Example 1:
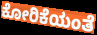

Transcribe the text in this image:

ಕೋರಿಕೆಯಂತೆ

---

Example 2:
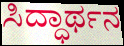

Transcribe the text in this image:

ಸಿದ್ಧಾರ್ಥನ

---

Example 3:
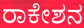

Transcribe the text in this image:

ರಾಕೇಶನ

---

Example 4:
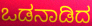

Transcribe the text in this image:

ಒಡನಾಡಿದ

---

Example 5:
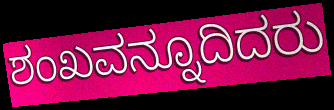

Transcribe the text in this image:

ಶಂಖವನ್ನೂದಿದರು